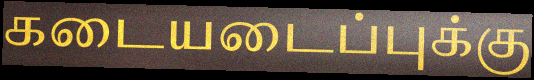
கடையடைப்புக்கு